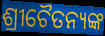
ଶ୍ରୀଚୈତନ୍ୟଙ୍କ